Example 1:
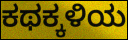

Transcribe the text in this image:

ಕಥಕ್ಕಳಿಯ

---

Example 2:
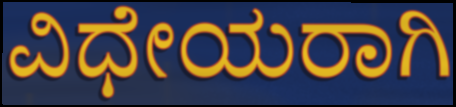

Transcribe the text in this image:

ವಿಧೇಯರಾಗಿ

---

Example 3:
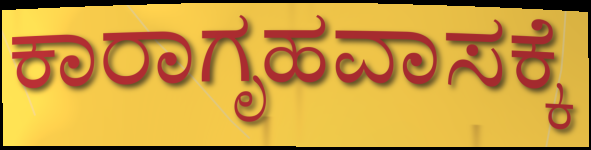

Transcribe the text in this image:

ಕಾರಾಗೃಹವಾಸಕ್ಕೆ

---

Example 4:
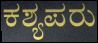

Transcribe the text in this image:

ಕಶ್ಯಪರು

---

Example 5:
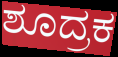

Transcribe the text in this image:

ಶೂದ್ರಕ